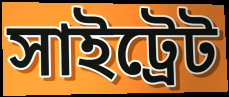
সাইট্রেট